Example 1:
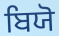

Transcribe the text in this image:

ਬਿਯੋ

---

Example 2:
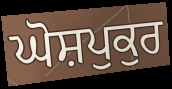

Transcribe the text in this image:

ਘੋਸ਼ਪੁਕੁਰ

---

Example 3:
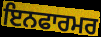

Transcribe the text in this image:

ਇਨਫਾਰਮਰ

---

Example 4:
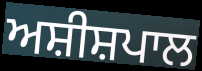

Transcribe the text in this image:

ਅਸ਼ੀਸ਼ਪਾਲ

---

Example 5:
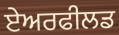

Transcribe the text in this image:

ਏਅਰਫੀਲਡ